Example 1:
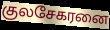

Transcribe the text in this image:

குலசேகரனை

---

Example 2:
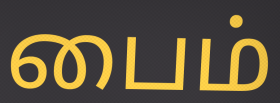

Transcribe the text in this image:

பைம்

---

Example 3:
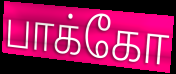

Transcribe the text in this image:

பாக்கோ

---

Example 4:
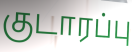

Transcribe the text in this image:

குடாரப்பு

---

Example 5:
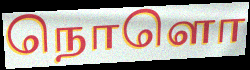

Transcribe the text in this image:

நொளொ